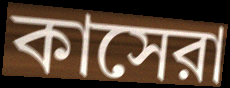
কাসেরা